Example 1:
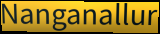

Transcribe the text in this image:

Nanganallur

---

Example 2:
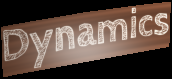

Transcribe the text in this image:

Dynamics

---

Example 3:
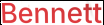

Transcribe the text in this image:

Bennett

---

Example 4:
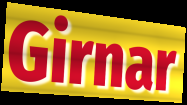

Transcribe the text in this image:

Girnar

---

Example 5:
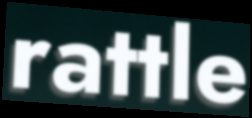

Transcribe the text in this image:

rattle